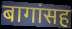
बागांसह